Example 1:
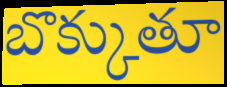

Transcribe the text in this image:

బొక్కుతూ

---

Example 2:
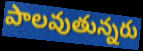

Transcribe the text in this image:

పాలవుతున్నరు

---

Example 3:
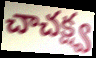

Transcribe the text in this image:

చాచక్ష్వ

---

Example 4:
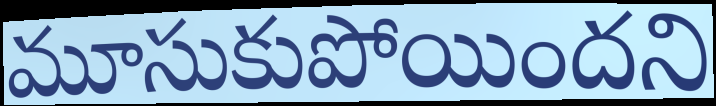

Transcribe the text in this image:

మూసుకుపోయిందని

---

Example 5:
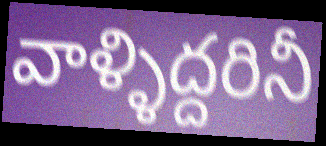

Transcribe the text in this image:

వాళ్ళిద్దరినీ